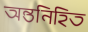
অন্তনিহিত